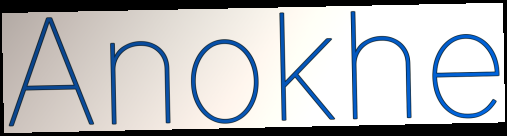
Anokhe